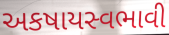
અકષાયસ્વભાવી